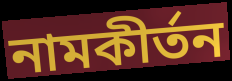
নামকীর্তন